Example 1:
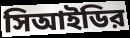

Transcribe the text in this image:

সিআইডির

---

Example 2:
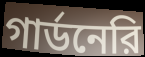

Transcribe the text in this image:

গার্ডনেরি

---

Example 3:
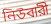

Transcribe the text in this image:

নিউবারী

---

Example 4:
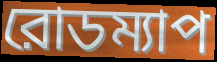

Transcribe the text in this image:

রোডম্যাপ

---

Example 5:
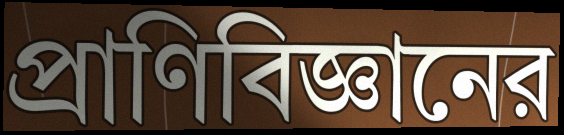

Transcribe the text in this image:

প্রাণিবিজ্ঞানের